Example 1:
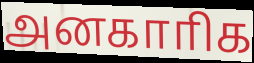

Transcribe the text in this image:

அனகாரிக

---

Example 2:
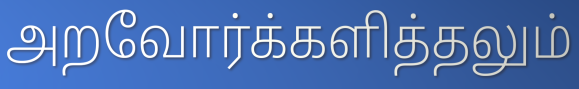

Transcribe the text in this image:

அறவோர்க்களித்தலும்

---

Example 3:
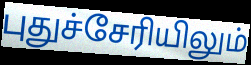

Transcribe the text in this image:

புதுச்சேரியிலும்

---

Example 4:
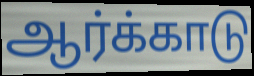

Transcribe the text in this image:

ஆர்க்காடு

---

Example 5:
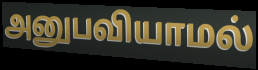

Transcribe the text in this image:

அனுபவியாமல்